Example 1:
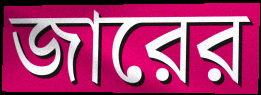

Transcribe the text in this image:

জারের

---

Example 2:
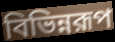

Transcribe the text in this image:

বিভিন্নরূপ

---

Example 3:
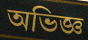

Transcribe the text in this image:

অভিজ্ঞ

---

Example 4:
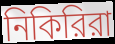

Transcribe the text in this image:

নিকিরিরা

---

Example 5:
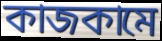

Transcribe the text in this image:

কাজকামে